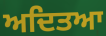
ਅਦਿਤਆ